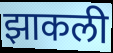
झाकली